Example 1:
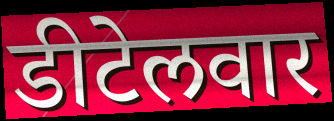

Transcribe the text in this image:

डीटेलवार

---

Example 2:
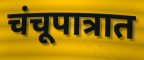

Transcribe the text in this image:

चंचूपात्रात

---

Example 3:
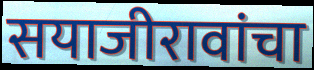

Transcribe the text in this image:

सयाजीरावांचा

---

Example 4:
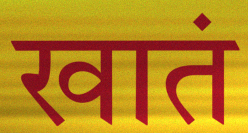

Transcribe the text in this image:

खातं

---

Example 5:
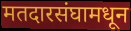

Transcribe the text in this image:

मतदारसंघामधून